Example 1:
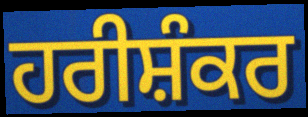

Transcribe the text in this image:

ਹਰੀਸ਼ੰਕਰ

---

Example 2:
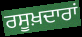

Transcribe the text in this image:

ਰਸੂਖ਼ਦਾਰਾਂ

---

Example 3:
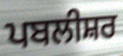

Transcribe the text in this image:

ਪਬਲੀਸ਼ਰ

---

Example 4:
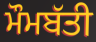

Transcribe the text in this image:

ਮੌਮਬੱਤੀ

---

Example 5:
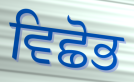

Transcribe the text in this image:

ਵਿਛੋਭ